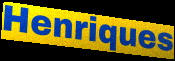
Henriques